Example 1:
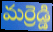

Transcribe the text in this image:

మర్రెడ్డి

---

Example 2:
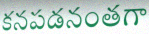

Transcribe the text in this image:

కనపడనంతగా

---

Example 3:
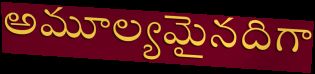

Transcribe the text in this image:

అమూల్యమైనదిగా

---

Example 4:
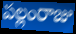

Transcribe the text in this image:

పల్లంరాజు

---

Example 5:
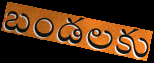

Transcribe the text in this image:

బండలకు